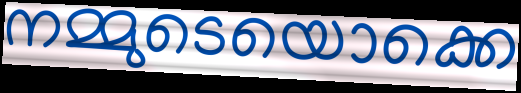
നമ്മുടെയൊക്കെ